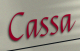
Cassa